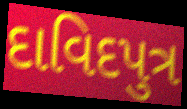
દાવિદપુત્ર